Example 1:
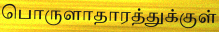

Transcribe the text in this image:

பொருளாதாரத்துக்குள்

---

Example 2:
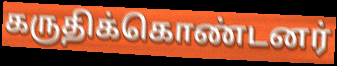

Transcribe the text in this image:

கருதிக்கொண்டனர்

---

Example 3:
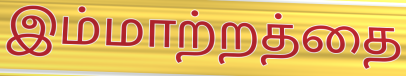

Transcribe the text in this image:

இம்மாற்றத்தை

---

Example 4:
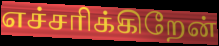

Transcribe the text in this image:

எச்சரிக்கிறேன்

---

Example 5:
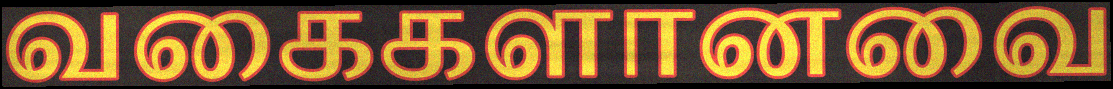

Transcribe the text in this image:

வகைகளானவை